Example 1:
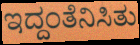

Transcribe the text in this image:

ಇದ್ದಂತೆನಿಸಿತು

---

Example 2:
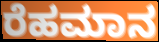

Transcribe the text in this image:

ರೆಹಮಾನ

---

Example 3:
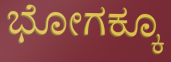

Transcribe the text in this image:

ಭೋಗಕ್ಕೂ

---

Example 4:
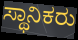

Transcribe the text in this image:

ಸ್ಥಾನಿಕರು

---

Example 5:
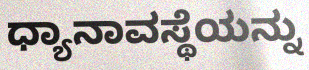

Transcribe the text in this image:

ಧ್ಯಾನಾವಸ್ಥೆಯನ್ನು